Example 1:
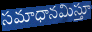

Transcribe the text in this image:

సమాధానమిస్తూ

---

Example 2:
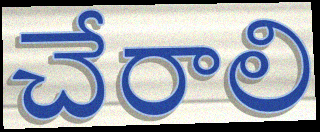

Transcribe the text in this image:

చేరాలి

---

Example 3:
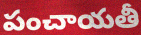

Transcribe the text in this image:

పంచాయతీ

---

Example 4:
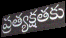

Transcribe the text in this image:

ప్రత్యక్షతకు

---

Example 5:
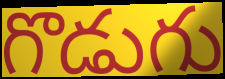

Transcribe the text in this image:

గొడుగు